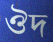
ঔদ